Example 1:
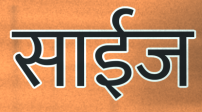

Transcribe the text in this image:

साईज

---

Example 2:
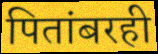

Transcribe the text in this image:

पितांबरही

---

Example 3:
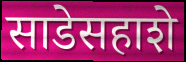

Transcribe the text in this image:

साडेसहाशे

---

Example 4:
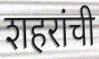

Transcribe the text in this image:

शहरांची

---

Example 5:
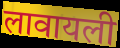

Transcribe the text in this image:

लावायली